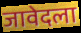
जावेदला